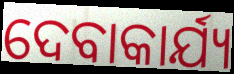
ଦେବାକାର୍ଯ୍ୟ